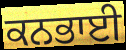
ਕਨਭਾਈ